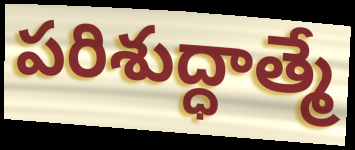
పరిశుద్ధాత్మే